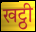
खट्ठी